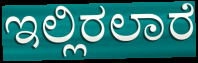
ಇಲ್ಲಿರಲಾರೆ